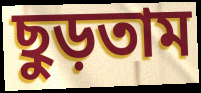
ছুড়তাম